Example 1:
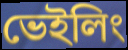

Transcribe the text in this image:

ভেইলিং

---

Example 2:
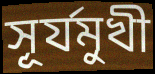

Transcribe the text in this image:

সূর্যমুখী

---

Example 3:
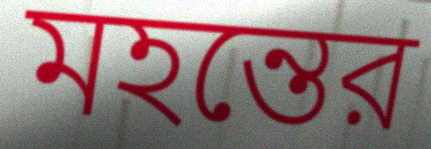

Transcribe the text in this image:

মহন্তের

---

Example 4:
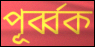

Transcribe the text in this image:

পূর্ব্বক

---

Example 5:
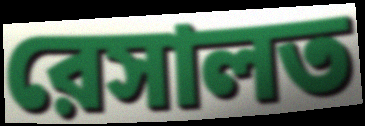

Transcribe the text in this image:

রেসালত